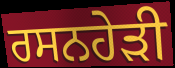
ਰਸਨਹੇੜੀ